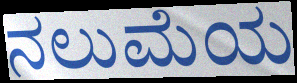
ನಲುಮೆಯ